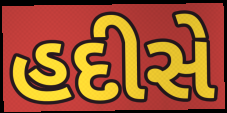
હદીસે